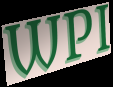
WPI